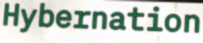
Hybernation